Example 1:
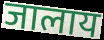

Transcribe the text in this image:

जालाय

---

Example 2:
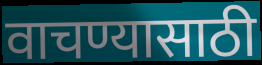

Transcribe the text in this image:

वाचण्यासाठी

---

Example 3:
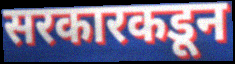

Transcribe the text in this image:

सरकारकडून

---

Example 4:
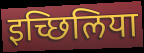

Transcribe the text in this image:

इच्छिलिया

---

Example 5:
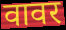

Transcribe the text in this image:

वावर